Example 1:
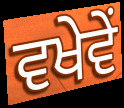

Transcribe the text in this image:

ਵਖੇਵੇਂ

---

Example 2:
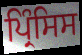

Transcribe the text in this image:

ਪ੍ਰਿੰਸਿਸ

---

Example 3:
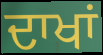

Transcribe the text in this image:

ਦਾਖਾਂ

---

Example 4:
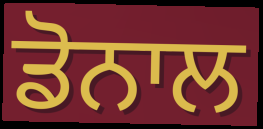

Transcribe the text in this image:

ਡੋਨਾਲ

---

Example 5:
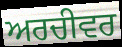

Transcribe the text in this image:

ਅਰਚੀਵਰ